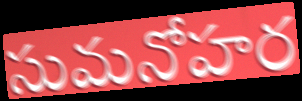
సుమనోహర